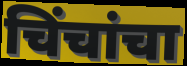
चिंचांचा